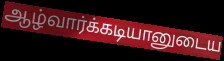
ஆழ்வார்க்கடியானுடைய